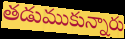
తడుముకున్నారు